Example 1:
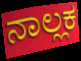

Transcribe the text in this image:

ನಾಲ್ಲಕ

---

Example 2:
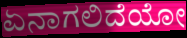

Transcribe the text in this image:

ಏನಾಗಲಿದೆಯೋ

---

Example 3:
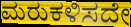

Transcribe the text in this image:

ಮರುಕಳಿಸದೇ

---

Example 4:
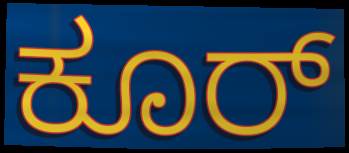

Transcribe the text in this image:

ಕೂರ್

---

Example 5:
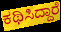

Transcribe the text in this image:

ಕಥಿಸಿದ್ದಾರೆ